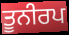
ਤੂਨੀਰਪ